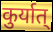
कुर्यात्